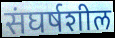
संघर्षशील